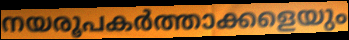
നയരൂപകർത്താക്കളെയും